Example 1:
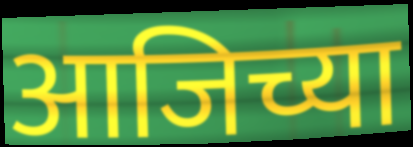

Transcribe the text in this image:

आजिच्या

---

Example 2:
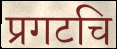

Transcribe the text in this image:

प्रगटचि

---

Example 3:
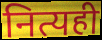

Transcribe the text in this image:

नित्यही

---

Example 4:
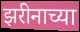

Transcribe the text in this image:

झरीनाच्या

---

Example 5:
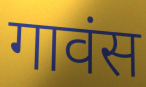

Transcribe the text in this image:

गावंस